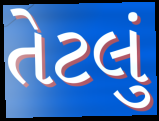
તેટલું